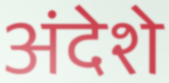
अंदेशे